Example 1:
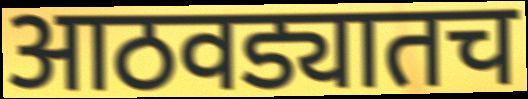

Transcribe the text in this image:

आठवड्यातच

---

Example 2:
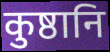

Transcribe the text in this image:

कुष्ठानि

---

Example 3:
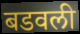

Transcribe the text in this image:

बडवली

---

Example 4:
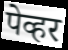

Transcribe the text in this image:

पेव्हर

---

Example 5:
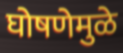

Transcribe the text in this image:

घोषणेमुळे